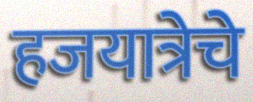
हजयात्रेचे